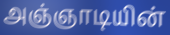
அஞ்ஞாடியின்